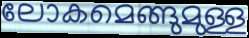
ലോകമെങ്ങുമുള്ള